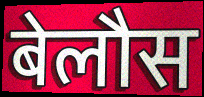
बेलौस